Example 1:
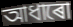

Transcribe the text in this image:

আধাৰো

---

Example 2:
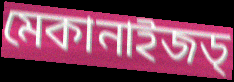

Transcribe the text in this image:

মেকানাইজড্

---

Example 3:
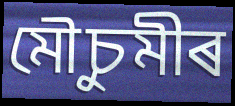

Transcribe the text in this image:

মৌচুমীৰ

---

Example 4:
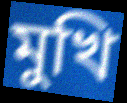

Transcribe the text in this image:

মুখি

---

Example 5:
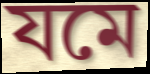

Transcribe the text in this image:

যমে